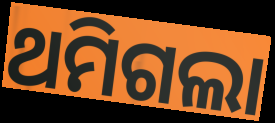
ଥମିଗଲା